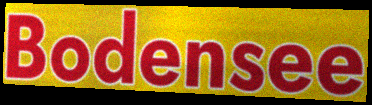
Bodensee